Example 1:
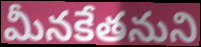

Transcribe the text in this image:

మీనకేతనుని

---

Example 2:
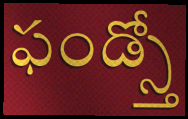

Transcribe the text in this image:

ఫండ్స్తో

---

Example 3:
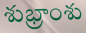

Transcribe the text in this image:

శుభ్రాంశు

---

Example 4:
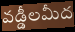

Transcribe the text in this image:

వడ్డీలమీద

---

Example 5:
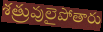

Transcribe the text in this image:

శత్రువులైపోతారు